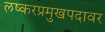
लष्करप्रमुखपदावर